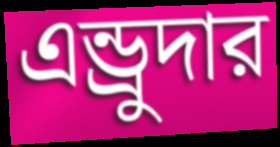
এন্ড্রুদার